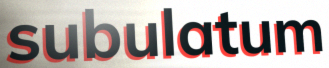
subulatum